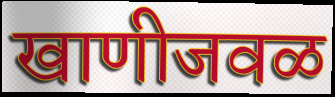
खाणीजवळ